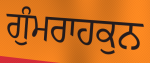
ਗੁੰਮਰਾਹਕੁਨ